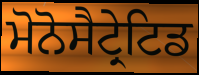
ਮੋਨੋਸੈਟ੍ਰੇਟਿਡ